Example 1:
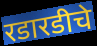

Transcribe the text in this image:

रडारडीचे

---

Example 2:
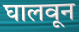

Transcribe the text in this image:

घालवून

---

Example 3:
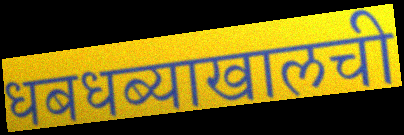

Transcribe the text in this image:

धबधब्याखालची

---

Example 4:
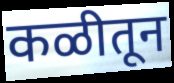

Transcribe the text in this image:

कळीतून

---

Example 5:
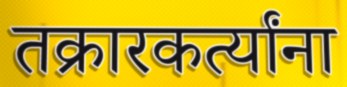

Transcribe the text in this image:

तक्रारकर्त्यांना